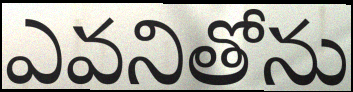
ఎవనితోను